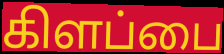
கிளப்பை